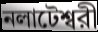
নলাটেশ্বরী